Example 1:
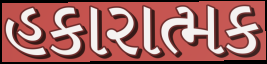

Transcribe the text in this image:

હકારાત્મક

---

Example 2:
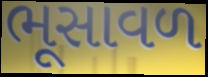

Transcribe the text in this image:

ભૂસાવળ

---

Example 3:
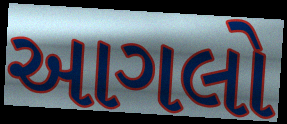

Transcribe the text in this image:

આગલો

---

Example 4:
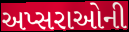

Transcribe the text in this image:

અપ્સરાઓની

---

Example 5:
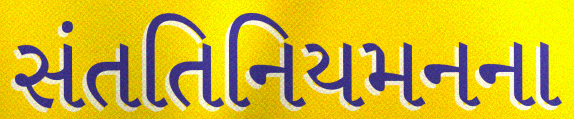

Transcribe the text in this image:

સંતતિનિયમનના